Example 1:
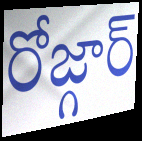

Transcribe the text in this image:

రోజ్గార్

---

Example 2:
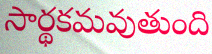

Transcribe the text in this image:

సార్థకమవుతుంది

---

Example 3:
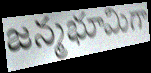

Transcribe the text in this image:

జన్మభూమిగా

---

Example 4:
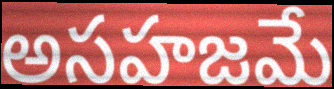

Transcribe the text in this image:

అసహజమే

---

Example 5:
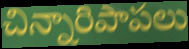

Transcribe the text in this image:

చిన్నారిపాపలు